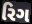
રિગ